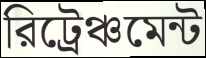
রিট্রেঞ্চমেন্ট